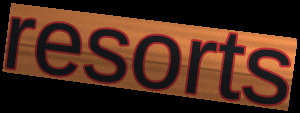
resorts